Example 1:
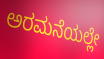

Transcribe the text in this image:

ಅರಮನೆಯಲ್ಲೇ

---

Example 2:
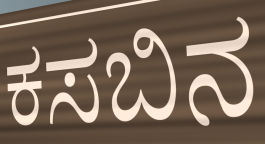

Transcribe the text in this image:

ಕಸಬಿನ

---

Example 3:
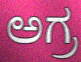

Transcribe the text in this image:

ಅಗ್ರ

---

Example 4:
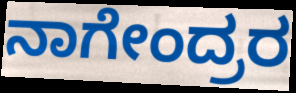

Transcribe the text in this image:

ನಾಗೇಂದ್ರರ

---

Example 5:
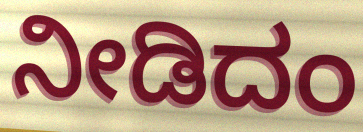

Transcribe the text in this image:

ನೀಡಿದಂ